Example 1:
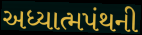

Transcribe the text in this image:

અધ્યાત્મપંથની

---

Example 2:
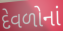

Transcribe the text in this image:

દેવળોનાં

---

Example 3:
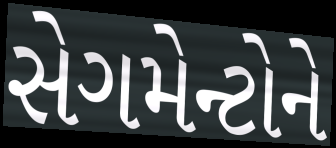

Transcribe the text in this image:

સેગમેન્ટોને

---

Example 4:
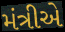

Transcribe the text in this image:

મંત્રીએ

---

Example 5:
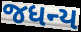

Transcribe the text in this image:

જધન્ય